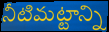
నీటిమట్టాన్ని